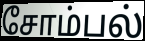
சோம்பல்